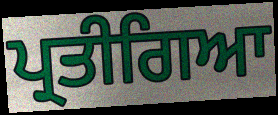
ਪ੍ਰਤੀਗਿਆ